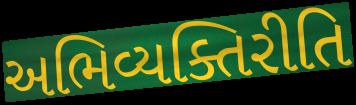
અભિવ્યક્તિરીતિ